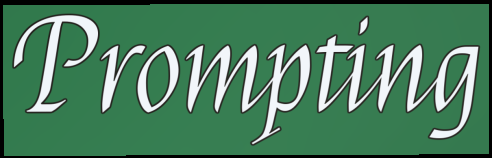
Prompting